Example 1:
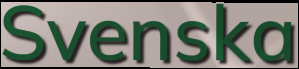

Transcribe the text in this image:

Svenska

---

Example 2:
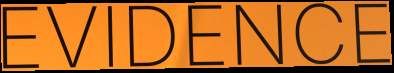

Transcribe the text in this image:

EVIDENCE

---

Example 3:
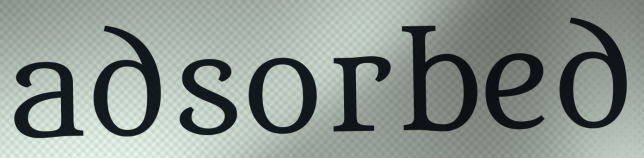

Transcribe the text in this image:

adsorbed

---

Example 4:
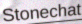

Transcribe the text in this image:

Stonechat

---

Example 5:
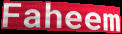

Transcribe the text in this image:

Faheem